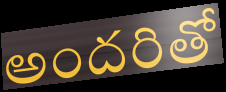
అందరితో